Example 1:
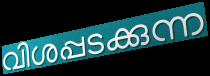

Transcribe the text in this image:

വിശപ്പടക്കുന്ന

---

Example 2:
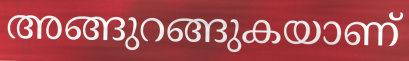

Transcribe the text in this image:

അങ്ങുറങ്ങുകയാണ്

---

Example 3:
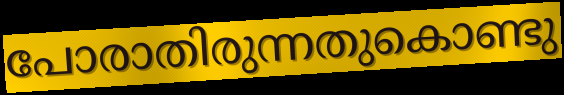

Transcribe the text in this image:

പോരാതിരുന്നതുകൊണ്ടു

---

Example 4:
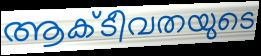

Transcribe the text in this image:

ആക്ടീവതയുടെ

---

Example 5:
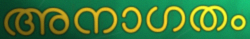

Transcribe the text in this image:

അനാഗതം